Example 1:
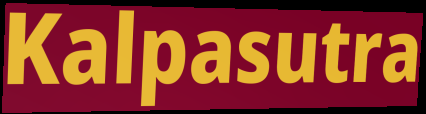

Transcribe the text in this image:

Kalpasutra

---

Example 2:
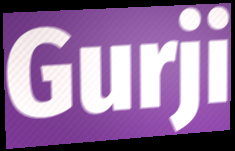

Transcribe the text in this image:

Gurji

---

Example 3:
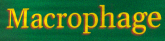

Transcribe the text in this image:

Macrophage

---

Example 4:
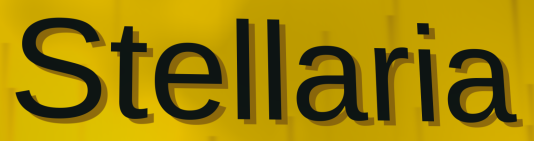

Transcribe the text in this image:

Stellaria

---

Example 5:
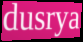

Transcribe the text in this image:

dusrya